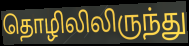
தொழிலிலிருந்து